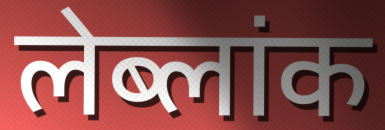
लेब्लांक